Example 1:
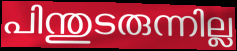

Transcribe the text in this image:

പിന്തുടരുന്നില്ല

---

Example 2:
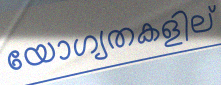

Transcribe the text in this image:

യോഗ്യതകളില്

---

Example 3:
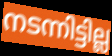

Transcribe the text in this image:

നടന്നിട്ടില്ല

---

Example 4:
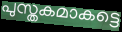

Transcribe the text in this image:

പുസ്തകമാകട്ടെ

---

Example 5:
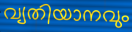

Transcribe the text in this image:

വ്യതിയാനവും